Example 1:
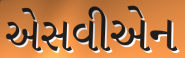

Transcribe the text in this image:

એસવીએન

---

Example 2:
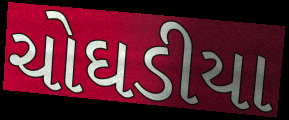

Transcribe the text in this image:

ચોઘડીયા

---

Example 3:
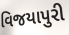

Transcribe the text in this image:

વિજયાપુરી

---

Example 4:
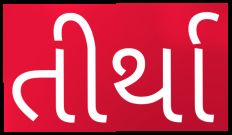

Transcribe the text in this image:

તીર્થા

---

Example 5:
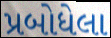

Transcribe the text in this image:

પ્રબોધેલા